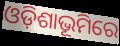
ଓଡ଼ିଶାଭୂମିରେ